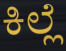
ಕಿಲ್ಲೆ